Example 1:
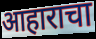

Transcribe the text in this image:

आहाराचा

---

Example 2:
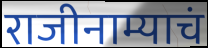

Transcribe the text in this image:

राजीनाम्याचं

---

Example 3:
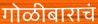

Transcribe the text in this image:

गोळीबाराचं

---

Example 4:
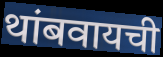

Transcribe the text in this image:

थांबवायची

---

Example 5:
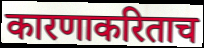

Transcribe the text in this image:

कारणाकरिताच